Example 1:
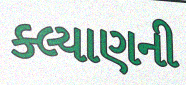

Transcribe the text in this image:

ક્લ્યાણની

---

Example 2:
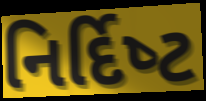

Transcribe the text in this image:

નિર્દિષ્‍ટ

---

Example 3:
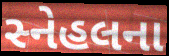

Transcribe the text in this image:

સ્નેહલના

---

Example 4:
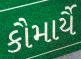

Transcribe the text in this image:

કૌમાર્યૈ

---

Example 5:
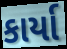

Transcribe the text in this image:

કાર્યા